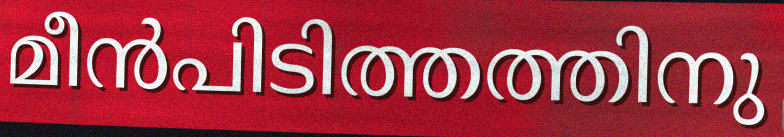
മീൻപിടിത്തത്തിനു